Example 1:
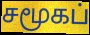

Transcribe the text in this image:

சமூகப்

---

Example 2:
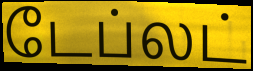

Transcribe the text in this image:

டேப்லட்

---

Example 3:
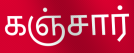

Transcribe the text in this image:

கஞ்சார்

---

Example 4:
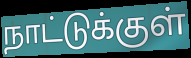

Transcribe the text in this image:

நாட்டுக்குள்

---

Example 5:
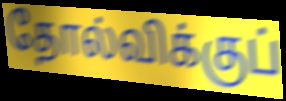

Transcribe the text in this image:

தோல்விக்குப்